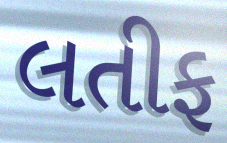
લતીફ